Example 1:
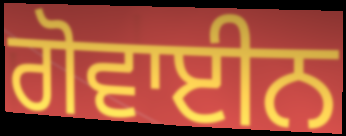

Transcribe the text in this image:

ਗੋਵਾਈਨ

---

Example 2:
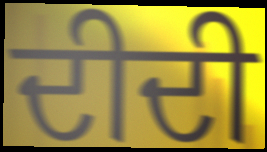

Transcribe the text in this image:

ਦੀਦੀ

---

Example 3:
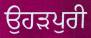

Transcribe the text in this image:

ਉਹੜਪੁਰੀ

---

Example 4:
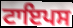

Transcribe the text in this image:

ਟਾਇਪਸ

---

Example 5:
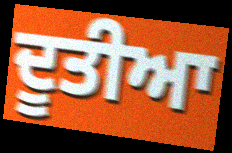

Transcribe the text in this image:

ਦੂਤੀਆ